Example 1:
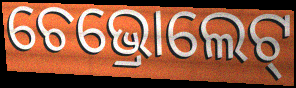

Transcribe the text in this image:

ଚେଭ୍ରୋଲେଟ୍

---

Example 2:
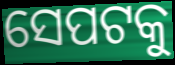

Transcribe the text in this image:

ସେପଟକୁ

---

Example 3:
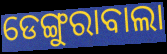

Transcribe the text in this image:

ଡେଙ୍ଗୁରାବାଲା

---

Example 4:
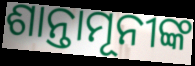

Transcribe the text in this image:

ଶାନ୍ତାମୂନୀଙ୍କ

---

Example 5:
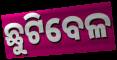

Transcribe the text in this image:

ଛୁଟିବେଳ